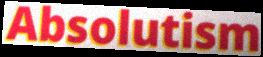
Absolutism